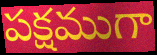
పక్షముగా